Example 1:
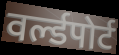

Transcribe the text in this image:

वर्ल्डपोर्ट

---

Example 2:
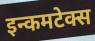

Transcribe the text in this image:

इन्कमटेक्स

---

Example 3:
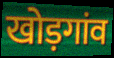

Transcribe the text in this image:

खोड़गांव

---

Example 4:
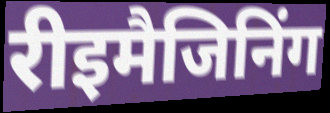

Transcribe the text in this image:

रीइमैजिनिंग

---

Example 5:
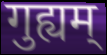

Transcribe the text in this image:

गुह्यम्